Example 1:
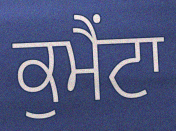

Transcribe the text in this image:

ਕੁਮੈਂਟਾ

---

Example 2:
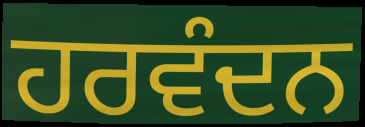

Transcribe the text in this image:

ਹਰਵੰਦਨ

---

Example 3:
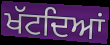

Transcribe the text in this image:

ਖੱਟਦਿਆਂ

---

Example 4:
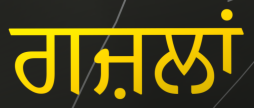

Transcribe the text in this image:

ਗਜ਼ਲਾਂ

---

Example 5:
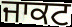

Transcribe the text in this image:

ਜਾਕਟ